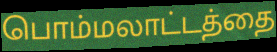
பொம்மலாட்டத்தை